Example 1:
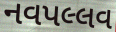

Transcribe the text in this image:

નવપલ્લવ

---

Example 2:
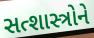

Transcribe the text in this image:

સત્શાસ્ત્રોને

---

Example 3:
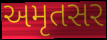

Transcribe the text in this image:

અમૃતસર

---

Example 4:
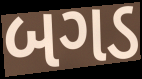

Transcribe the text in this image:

બગડ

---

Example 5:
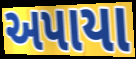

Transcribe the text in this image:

અપાયા